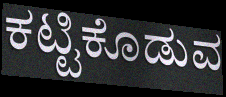
ಕಟ್ಟಿಕೊಡುವ